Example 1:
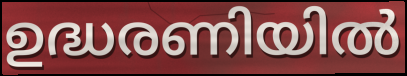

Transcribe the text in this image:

ഉദ്ധരണിയിൽ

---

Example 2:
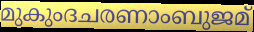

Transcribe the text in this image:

മുകുംദചരണാംബുജമ്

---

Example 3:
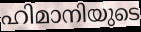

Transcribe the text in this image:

ഹിമാനിയുടെ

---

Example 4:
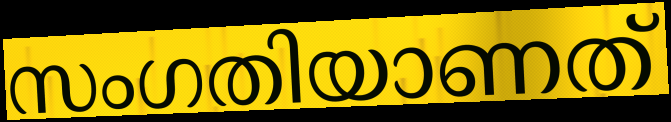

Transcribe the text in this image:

സംഗതിയാണത്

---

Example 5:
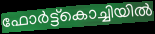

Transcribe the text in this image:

ഫോർട്ട്കൊച്ചിയിൽ